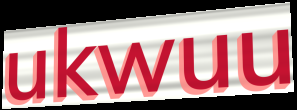
ukwuu